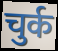
चुर्क